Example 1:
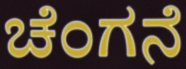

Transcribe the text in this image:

ಚೆಂಗನೆ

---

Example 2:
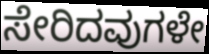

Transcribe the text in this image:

ಸೇರಿದವುಗಳೇ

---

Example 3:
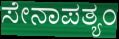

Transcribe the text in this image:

ಸೇನಾಪತ್ಯಂ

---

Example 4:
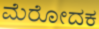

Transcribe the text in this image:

ಮೆರೋದಕ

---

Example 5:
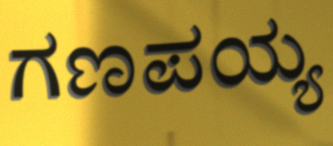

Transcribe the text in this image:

ಗಣಪಯ್ಯ